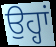
ਉਹ੍ਹਾਂ